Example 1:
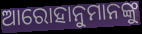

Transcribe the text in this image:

ଆରୋହାନୁମାନଙ୍କୁ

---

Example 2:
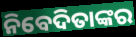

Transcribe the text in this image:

ନିବେଦିତାଙ୍କର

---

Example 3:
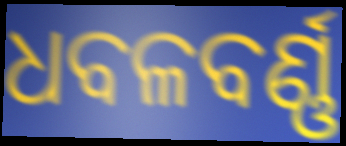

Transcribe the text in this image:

ଧବଳବର୍ଣ୍ଣ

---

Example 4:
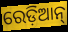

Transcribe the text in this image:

ରେଡ଼ିଆନ୍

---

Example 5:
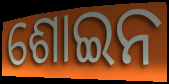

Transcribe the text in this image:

ଶୋଇନ